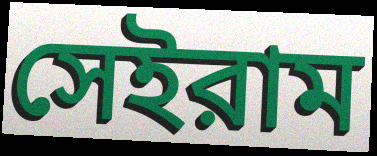
সেইরাম